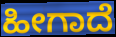
ಹೀಗಾದೆ